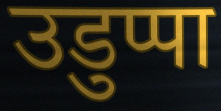
उडुप्पा